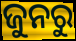
ଜୁନରୁ